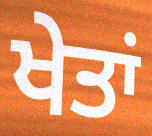
ਖੇਤਾਂ